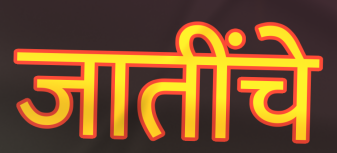
जातींचे